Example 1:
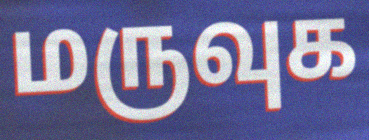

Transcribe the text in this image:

மருவுக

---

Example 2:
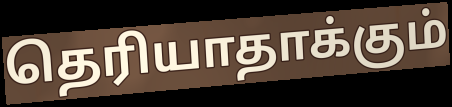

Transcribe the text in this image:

தெரியாதாக்கும்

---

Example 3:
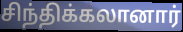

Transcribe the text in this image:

சிந்திக்கலானார்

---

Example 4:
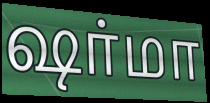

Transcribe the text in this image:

ஷர்மா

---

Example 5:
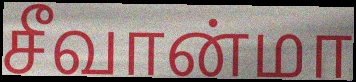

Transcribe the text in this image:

சீவான்மா